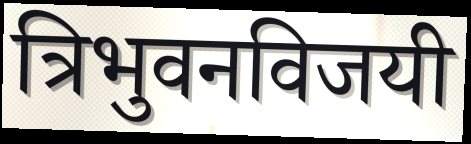
त्रिभुवनविजयी